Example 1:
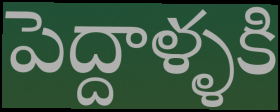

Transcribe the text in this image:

పెద్దాళ్ళకి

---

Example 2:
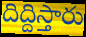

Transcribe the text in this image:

దిద్దిస్తారు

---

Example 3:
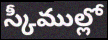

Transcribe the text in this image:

స్కీముల్లో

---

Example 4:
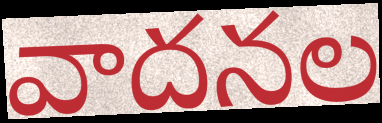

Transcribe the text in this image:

వాదనల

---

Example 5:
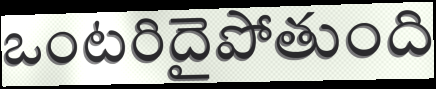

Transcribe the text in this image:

ఒంటరిదైపోతుంది